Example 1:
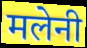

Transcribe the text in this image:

मलेनी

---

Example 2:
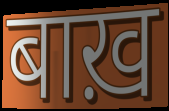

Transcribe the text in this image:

बाख़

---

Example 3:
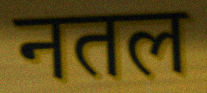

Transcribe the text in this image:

नतल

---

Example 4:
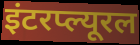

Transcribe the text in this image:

इंटरप्ल्यूरल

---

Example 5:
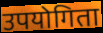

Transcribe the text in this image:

उपयोगिता